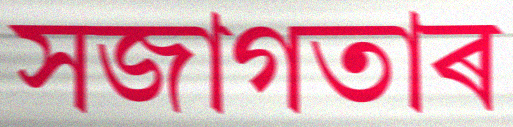
সজাগতাৰ